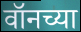
वॉनच्या